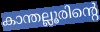
കാന്തല്ലൂരിന്റെ